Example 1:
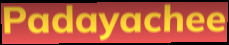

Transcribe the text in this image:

Padayachee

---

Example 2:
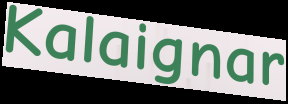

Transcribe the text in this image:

Kalaignar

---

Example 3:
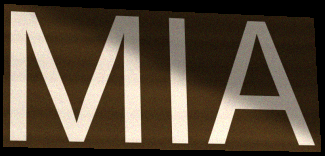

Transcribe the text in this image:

MIA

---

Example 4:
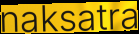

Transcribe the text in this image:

naksatra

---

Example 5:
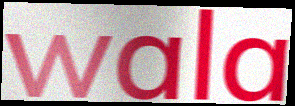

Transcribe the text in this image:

wala